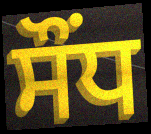
ਸੌਂਧ